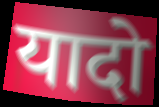
यादो